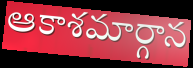
ఆకాశమార్గాన